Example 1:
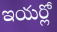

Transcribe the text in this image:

ఇయర్లో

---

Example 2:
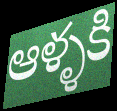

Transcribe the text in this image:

ఆళ్ళకి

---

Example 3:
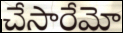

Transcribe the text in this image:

చేసారేమో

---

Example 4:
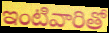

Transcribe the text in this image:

ఇంటివారితో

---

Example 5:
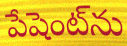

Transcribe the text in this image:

పేషెంట్‌ను